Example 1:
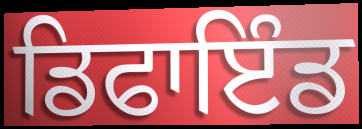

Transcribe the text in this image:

ਡਿਫਾਇੰਡ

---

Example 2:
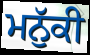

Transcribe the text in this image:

ਮਨੁੱਕੀ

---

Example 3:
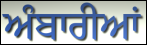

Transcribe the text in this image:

ਅੰਬਾਰੀਆਂ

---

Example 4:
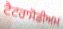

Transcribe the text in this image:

ਟੈਟਰਾਸੋਡੀਅਮ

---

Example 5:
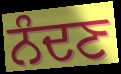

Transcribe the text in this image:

ਨੰਦਣ